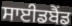
ਸਾਈਡਬੈਂਡ